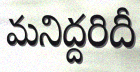
మనిద్దరిదీ